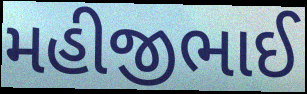
મહીજીભાઈ